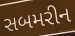
સબમરીન